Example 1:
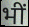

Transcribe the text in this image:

भीं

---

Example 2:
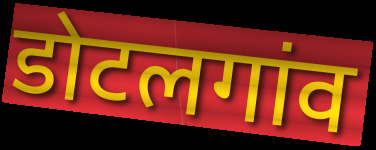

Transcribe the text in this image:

डोटलगांव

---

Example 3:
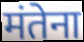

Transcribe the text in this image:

मंतेना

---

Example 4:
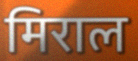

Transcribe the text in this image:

मिराल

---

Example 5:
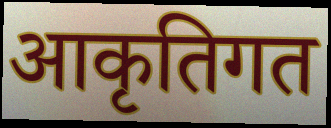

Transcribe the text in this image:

आकृतिगत